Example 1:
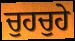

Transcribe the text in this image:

ਚੁਹਚੁਹੇ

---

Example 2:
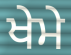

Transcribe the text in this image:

ਖੇਮੇ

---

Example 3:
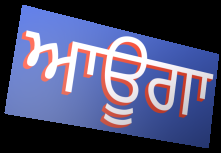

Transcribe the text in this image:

ਆਊਗਾ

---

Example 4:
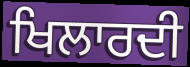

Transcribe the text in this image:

ਖਿਲਾਰਦੀ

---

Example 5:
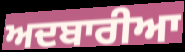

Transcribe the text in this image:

ਅਦਬਾਰੀਆ